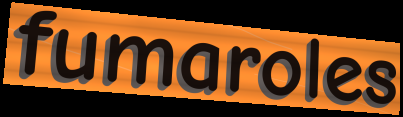
fumaroles